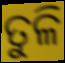
ତୁଳି